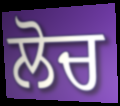
ਲੋਚ